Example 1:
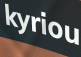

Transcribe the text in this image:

kyriou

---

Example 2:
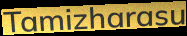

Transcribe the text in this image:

Tamizharasu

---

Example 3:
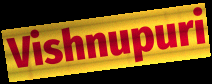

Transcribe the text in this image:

Vishnupuri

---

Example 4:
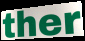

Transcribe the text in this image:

ther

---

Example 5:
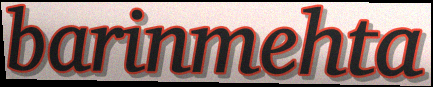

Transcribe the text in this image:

barinmehta